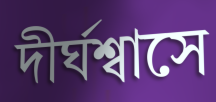
দীর্ঘশ্বাসে